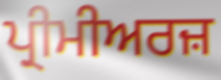
ਪ੍ਰੀਮੀਅਰਜ਼